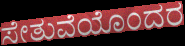
ಸೇತುವೆಯೊಂದರ